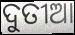
ଦୁତୀଆ